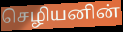
செழியனின்